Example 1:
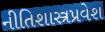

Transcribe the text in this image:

નીતિશાસ્ત્રપ્રવેશ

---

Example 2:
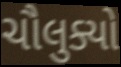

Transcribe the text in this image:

ચૌલુક્યો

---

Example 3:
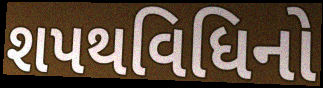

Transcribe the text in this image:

શપથવિધિનો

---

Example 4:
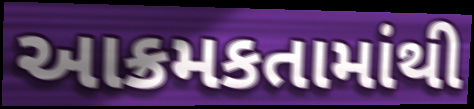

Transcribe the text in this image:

આક્રમકતામાંથી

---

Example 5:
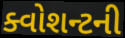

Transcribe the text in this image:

ક્વોશન્ટની